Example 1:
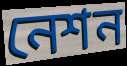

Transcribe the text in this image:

নেশন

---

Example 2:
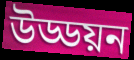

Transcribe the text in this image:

উড্ডয়ন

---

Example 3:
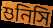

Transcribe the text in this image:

শুনিসি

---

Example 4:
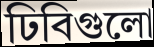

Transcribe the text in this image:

ঢিবিগুলো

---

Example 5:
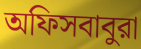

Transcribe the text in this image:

অফিসবাবুরা